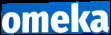
omeka